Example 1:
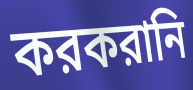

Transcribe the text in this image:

করকরানি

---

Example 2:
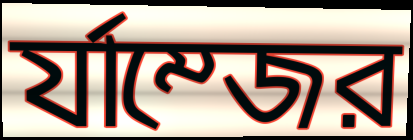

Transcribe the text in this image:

র্যাম্জের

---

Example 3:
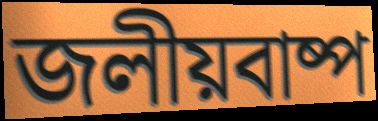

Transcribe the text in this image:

জলীয়বাষ্প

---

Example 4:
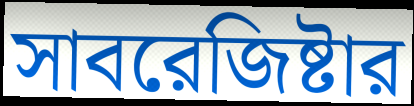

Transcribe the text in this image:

সাবরেজিষ্টার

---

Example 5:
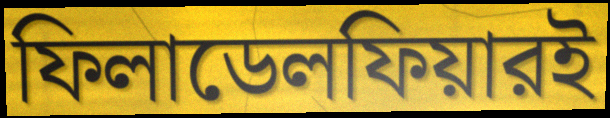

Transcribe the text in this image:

ফিলাডেলফিয়ারই